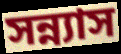
সন্ন্যাস